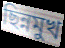
ছিন্নমুখ